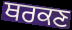
ਥਰਕਣ